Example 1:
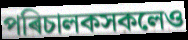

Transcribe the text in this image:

পৰিচালকসকলেও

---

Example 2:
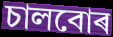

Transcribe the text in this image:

চালবোৰ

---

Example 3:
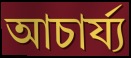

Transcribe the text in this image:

আচাৰ্য্য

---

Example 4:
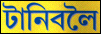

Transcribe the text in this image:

টানিবলৈ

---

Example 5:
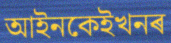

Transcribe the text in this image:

আইনকেইখনৰ